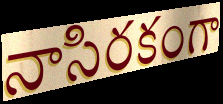
నాసిరకంగా